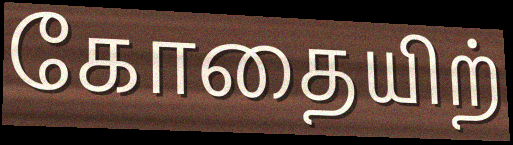
கோதையிற்